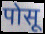
पोसू